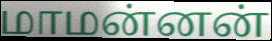
மாமன்னன்